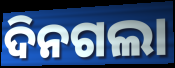
ଦିନଗଲା